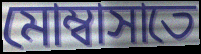
মোম্বাসাতে